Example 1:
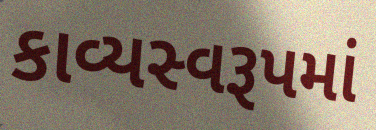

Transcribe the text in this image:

કાવ્યસ્વરૂપમાં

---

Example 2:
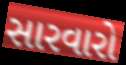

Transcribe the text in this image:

સારવારો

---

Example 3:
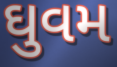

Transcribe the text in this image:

ઘુવમ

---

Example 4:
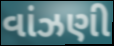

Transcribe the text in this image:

વાંઝણી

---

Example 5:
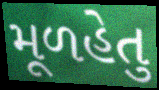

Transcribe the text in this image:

મૂળહેતુ